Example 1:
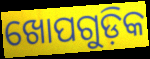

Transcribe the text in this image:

ଖୋପଗୁଡ଼ିକ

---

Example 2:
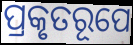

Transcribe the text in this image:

ପ୍ରକୃତରୂପେ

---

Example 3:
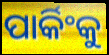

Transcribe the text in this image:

ପାର୍କିଂକୁ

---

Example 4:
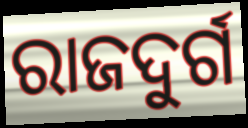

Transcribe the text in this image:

ରାଜଦୁର୍ଗ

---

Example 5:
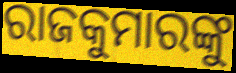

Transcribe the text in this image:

ରାଜକୁମାରଙ୍କୁ